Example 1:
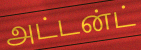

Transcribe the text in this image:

அட்டன்ட்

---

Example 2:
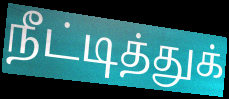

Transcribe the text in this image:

நீட்டித்துக்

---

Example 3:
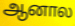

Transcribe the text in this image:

ஆனால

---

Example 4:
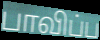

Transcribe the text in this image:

பாவிப்ப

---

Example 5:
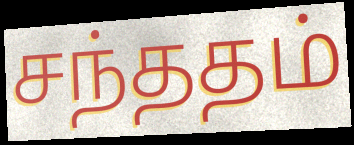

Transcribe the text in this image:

சந்ததம்